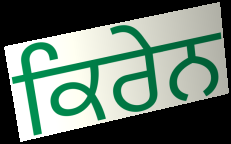
ਕਿਰੇਨ